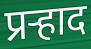
प्रर्‍हाद